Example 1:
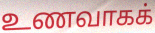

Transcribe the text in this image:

உணவாகக்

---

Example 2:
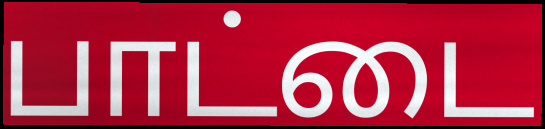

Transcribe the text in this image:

பாட்டை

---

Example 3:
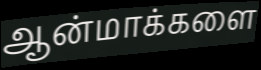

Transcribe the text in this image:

ஆன்மாக்களை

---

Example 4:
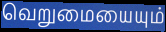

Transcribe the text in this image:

வெறுமையையும்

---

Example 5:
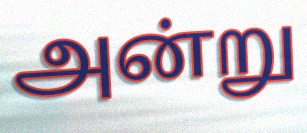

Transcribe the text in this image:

அன்று